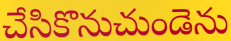
చేసికొనుచుండెను